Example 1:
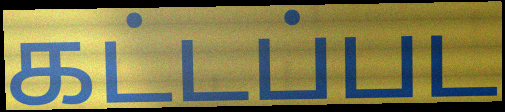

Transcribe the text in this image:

கட்டப்பட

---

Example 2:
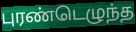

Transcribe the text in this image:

புரண்டெழுந்த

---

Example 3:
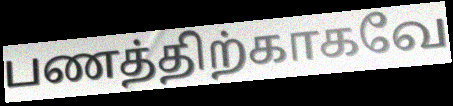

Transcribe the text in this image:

பணத்திற்காகவே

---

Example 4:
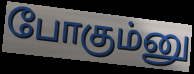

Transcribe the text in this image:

போகும்னு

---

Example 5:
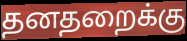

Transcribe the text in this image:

தனதறைக்கு